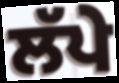
ਲੱਪੇ